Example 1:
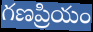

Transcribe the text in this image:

గణప్రియం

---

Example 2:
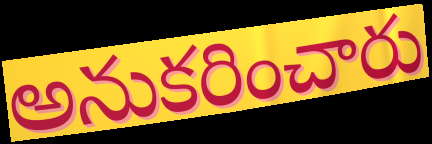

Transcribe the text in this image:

అనుకరించారు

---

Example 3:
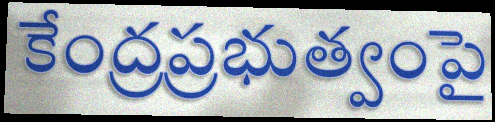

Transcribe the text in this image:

కేంద్రప్రభుత్వంపై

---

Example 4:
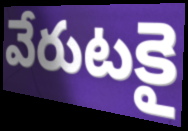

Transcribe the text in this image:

వేరుటకై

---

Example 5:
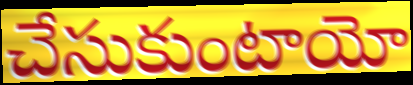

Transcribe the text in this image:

చేసుకుంటాయో